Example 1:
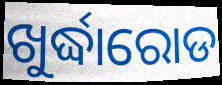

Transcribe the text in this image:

ଖୁର୍ଦ୍ଧାରୋଡ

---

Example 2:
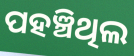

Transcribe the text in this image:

ପହଞ୍ଚିଥିଲ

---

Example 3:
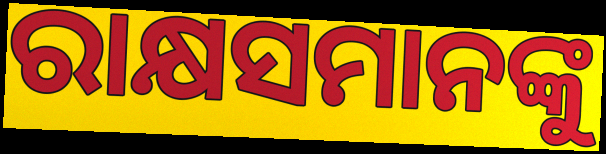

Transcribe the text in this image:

ରାକ୍ଷସମାନଙ୍କୁ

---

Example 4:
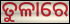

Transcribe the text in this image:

ତୁଳାରେ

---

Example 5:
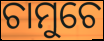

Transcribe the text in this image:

ଚାମୁଚେ